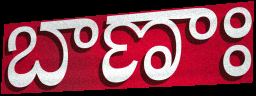
బాణాః